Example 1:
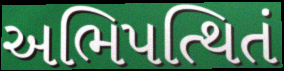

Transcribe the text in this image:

અભિપત્થિતં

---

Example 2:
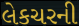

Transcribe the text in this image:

લેકચરની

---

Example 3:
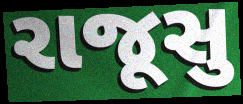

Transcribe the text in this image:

રાજૂસુ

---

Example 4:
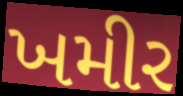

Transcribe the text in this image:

ખમીર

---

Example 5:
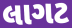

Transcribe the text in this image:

લાગટ